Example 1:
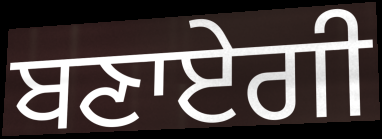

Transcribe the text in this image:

ਬਣਾਏਗੀ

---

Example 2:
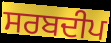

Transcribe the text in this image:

ਸਰਬਦੀਪ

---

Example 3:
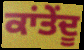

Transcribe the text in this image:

ਕਾਂਤੇਂਦੂ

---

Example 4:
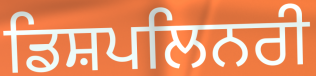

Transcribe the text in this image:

ਡਿਸ਼ਪਲਿਨਰੀ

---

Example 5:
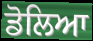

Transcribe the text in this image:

ਡੋਲਿਆ